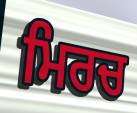
ਮਿਰਚ